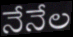
నేనేల